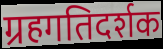
ग्रहगतिदर्शक